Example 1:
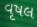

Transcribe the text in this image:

વૃષલ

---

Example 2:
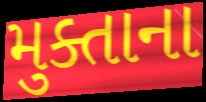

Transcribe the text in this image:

મુક્તાના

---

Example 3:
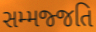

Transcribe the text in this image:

સમ્મજ્જતિ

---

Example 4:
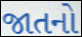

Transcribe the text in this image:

જાતનો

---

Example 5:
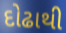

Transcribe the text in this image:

દોઢાથી